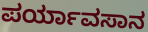
ಪರ್ಯಾವಸಾನ